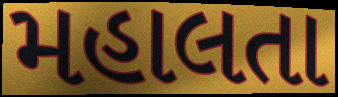
મહાલતા